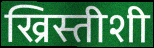
ख्रिस्तीशी